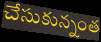
చేసుకున్నంత